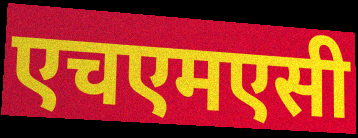
एचएमएसी